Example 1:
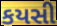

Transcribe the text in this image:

કયસી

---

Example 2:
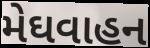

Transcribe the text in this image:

મેઘવાહન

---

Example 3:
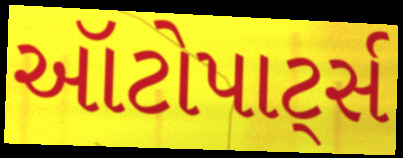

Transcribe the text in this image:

ઑટોપાર્ટ્સ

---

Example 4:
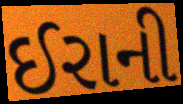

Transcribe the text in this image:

ઈરાની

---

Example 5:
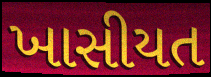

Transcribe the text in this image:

ખાસીયત